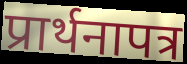
प्रार्थनापत्र